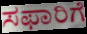
ಸಫಾರಿಗೆ